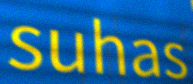
suhas